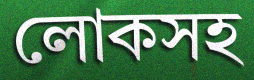
লোকসহ